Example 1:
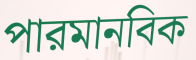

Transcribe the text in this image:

পারমানবিক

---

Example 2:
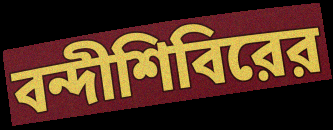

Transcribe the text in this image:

বন্দীশিবিরের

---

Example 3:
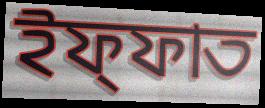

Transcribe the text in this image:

ইফ্ফাত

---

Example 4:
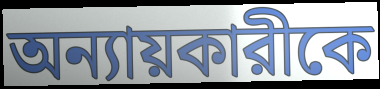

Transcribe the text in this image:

অন্যায়কারীকে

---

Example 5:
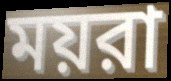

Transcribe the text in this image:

ময়রা